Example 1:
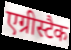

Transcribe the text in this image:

एग्रीस्टैक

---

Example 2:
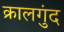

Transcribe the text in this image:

क्रालगुंद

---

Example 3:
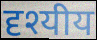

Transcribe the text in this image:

दृश्यीय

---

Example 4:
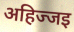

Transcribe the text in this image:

अहिज्जइ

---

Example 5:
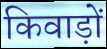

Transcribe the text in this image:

किवाड़ों